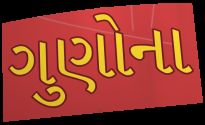
ગુણોના